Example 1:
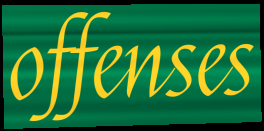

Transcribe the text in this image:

offenses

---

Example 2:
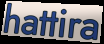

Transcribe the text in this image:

hattira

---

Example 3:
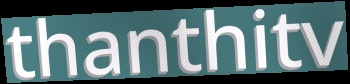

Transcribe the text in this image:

thanthitv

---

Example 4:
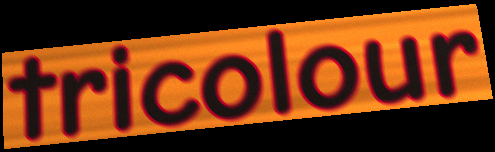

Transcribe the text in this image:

tricolour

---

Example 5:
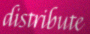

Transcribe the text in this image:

distribute